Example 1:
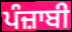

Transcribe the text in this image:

ਪੰਜ਼ਾਬੀ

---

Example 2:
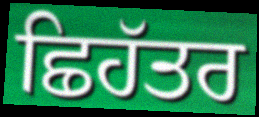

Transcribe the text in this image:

ਛਿਹੱਤਰ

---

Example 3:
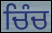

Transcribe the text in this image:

ਚਿੰਚ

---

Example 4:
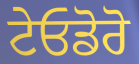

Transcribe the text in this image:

ਟੇਓਡੋਰੋ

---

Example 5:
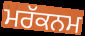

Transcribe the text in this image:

ਮਰੱਕਨਮ